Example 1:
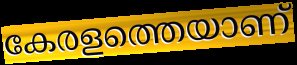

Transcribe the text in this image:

കേരളത്തെയാണ്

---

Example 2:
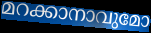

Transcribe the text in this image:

മറക്കാനാവുമോ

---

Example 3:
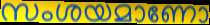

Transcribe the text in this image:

സംശയമാണോ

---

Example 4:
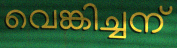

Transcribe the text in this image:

വെങ്കിച്ചന്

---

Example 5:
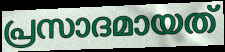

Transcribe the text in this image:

പ്രസാദമായത്